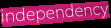
independency